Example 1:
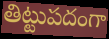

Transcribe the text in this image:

తిట్టుపదంగా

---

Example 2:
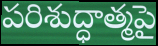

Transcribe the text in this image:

పరిశుద్ధాత్మపై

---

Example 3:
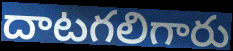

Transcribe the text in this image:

దాటగలిగారు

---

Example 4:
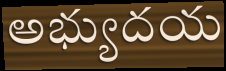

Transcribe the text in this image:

అభ్యుదయ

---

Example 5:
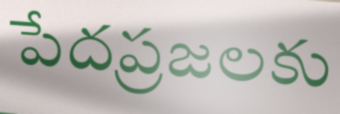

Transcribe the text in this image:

పేదప్రజలకు